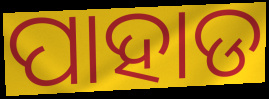
ପାହାଡ